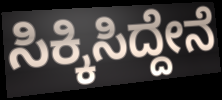
ಸಿಕ್ಕಿಸಿದ್ದೇನೆ